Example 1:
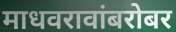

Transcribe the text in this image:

माधवरावांबरोबर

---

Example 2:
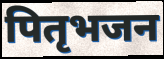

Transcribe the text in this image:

पितृभजन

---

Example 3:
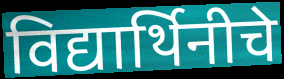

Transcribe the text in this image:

विद्यार्थिनीचे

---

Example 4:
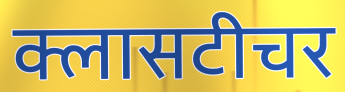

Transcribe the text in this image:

क्लासटीचर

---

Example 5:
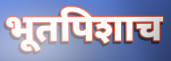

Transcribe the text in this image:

भूतपिशाच